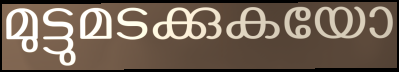
മുട്ടുമടക്കുകയോ